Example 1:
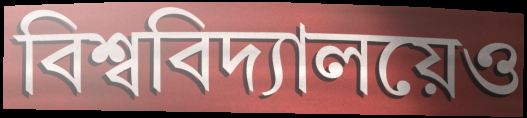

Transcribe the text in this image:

বিশ্ববিদ্যালয়েও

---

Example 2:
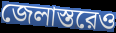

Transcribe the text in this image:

জেলাস্তরেও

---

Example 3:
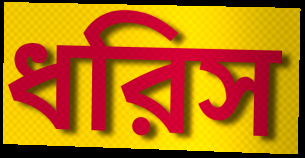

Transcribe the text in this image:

ধরিস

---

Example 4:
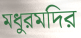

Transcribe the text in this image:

মধুরমদির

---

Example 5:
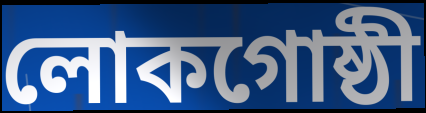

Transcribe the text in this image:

লোকগোষ্ঠী